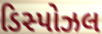
ડિસ્પોઝલ